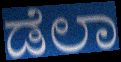
ಡೆಲಾ